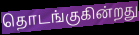
தொடங்குகின்றது